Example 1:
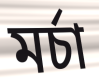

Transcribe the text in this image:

মৰ্চা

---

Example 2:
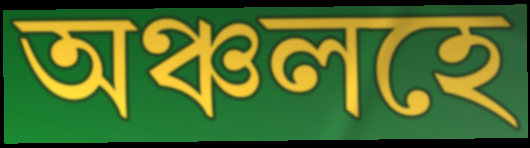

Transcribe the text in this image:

অঞ্চলহে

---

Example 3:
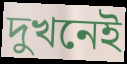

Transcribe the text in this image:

দুখনেই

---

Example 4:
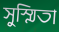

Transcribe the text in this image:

সুস্মিতা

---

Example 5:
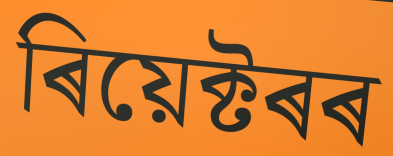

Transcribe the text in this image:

ৰিয়েক্টৰৰ